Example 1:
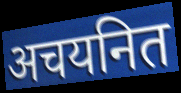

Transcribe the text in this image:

अचयनित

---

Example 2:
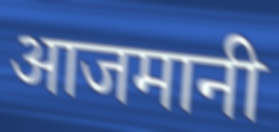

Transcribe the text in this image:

आजमानी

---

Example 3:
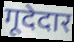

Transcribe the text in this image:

गूदेदार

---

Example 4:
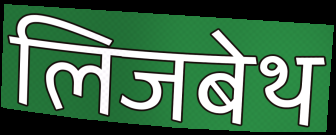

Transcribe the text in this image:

लिजबेथ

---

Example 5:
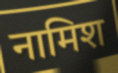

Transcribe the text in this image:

नामिश